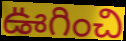
ఊగించి